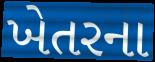
ખેતરના